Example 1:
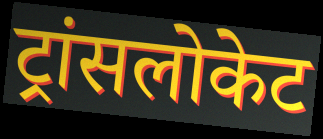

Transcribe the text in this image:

ट्रांसलोकेट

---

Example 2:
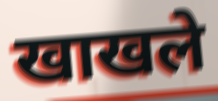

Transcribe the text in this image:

खाखले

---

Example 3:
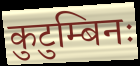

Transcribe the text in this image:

कुटुम्बिनः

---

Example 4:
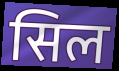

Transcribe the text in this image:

सिल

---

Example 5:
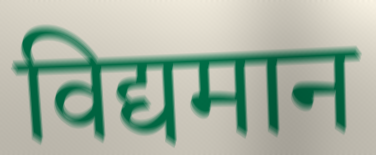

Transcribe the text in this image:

विद्यमान